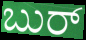
ಬುರ್